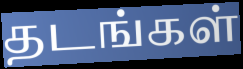
தடங்கள்